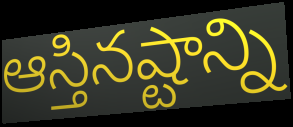
ఆస్తినష్టాన్ని